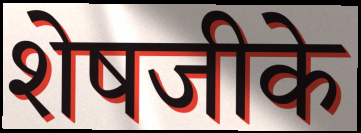
शेषजीके